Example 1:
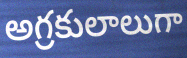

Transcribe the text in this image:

అగ్రకులాలుగా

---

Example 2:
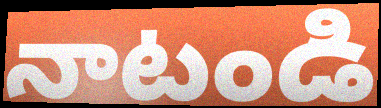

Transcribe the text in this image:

నాటండి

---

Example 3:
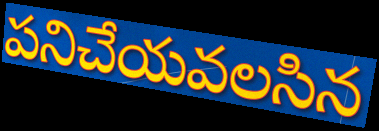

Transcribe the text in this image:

పనిచేయవలసిన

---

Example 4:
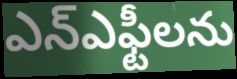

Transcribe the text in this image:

ఎన్ఎఫ్టీలను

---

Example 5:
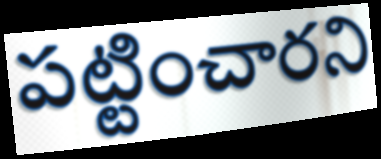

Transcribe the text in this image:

పట్టించారని